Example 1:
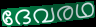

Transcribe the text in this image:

ദേവരഥ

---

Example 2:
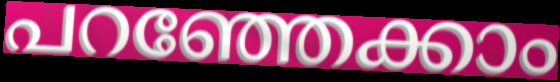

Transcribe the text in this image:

പറഞ്ഞേക്കാം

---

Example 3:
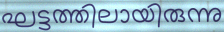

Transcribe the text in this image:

ഘട്ടത്തിലായിരുന്നു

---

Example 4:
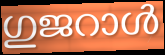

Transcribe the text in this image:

ഗുജറാൾ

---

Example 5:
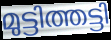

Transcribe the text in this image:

മുട്ടിത്തട്ടി